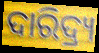
ଦାରିଦ୍ର୍ୟ